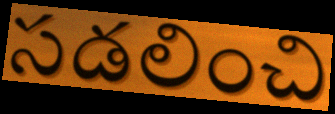
సడలించి